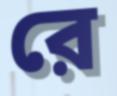
রে